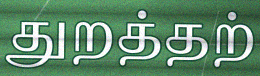
துறத்தற்